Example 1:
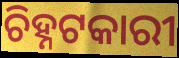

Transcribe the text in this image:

ଚିହ୍ନଟକାରୀ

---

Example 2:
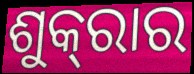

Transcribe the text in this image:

ଶୁକ୍‌ରାର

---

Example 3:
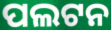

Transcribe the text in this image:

ପଲଟନ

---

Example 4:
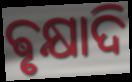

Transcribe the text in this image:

ଵୃକ୍ଷାଦି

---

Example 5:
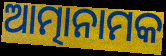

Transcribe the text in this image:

ଆତ୍ମାନାମକ